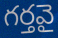
గర్తవై